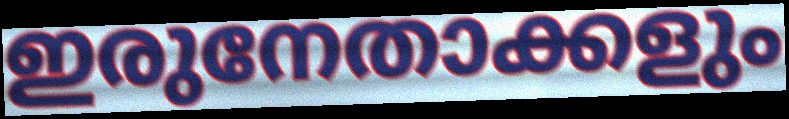
ഇരുനേതാക്കളും